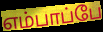
எம்பாப்பே